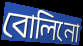
বোলিনো